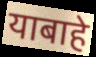
याबाहे